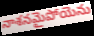
నాశనమైపోయెను